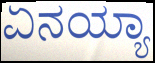
ಏನಯ್ಯಾ